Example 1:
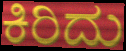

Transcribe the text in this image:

ಕಿರಿದು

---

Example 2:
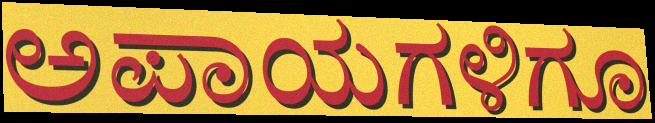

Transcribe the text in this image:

ಅಪಾಯಗಳಿಗೂ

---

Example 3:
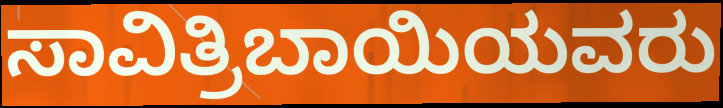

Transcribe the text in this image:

ಸಾವಿತ್ರಿಬಾಯಿಯವರು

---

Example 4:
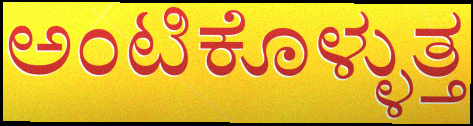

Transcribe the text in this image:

ಅಂಟಿಕೊಳ್ಳುತ್ತ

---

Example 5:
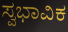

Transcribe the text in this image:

ಸ್ವಭಾವಿಕ